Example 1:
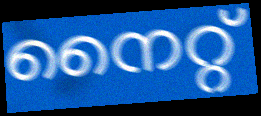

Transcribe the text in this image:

നൈറ്റ്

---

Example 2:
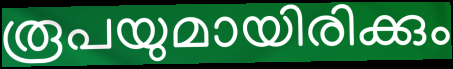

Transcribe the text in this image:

രൂപയുമായിരിക്കും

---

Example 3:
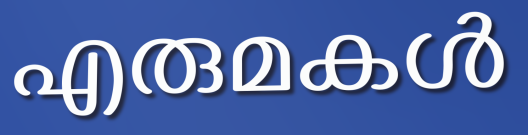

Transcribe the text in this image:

എരുമകൾ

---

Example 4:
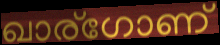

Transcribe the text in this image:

ഖാര്ഗോണ്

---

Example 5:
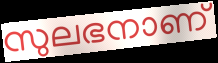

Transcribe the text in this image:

സുലഭനാണ്